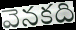
వెనకది